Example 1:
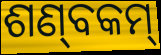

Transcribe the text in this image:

ଶଣ୍‌ବକମ୍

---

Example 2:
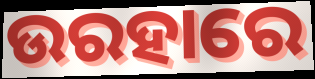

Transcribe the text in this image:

ଉରହାରେ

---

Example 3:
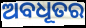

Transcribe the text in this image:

ଅବଧୂତର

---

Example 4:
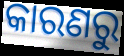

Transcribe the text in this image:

କାରଣରୁ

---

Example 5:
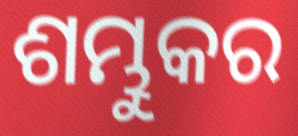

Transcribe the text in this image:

ଶମ୍ଭୁକର